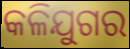
କଳିଯୁଗର